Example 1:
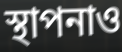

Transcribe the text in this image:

স্থাপনাও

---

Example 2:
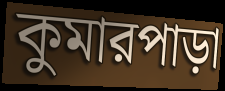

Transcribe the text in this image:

কুমারপাড়া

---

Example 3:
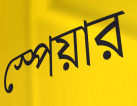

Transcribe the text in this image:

স্পেয়ার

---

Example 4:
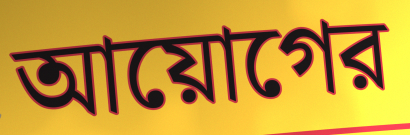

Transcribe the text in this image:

আয়োগের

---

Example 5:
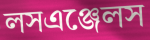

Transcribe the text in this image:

লসএঞ্জেলস